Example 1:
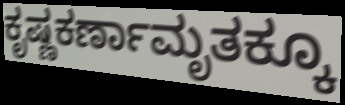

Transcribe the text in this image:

ಕೃಷ್ಣಕರ್ಣಾಮೃತಕ್ಕೂ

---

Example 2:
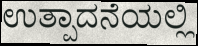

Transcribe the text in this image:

ಉತ್ಪಾದನೆಯಲ್ಲಿ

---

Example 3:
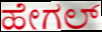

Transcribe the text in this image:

ಹೇಗಲ್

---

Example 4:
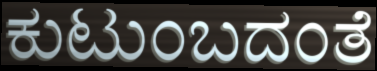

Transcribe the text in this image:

ಕುಟುಂಬದಂತೆ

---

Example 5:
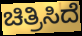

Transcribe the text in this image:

ಚಿತ್ರಿಸಿದೆ